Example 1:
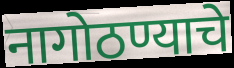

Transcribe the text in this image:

नागोठण्याचे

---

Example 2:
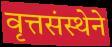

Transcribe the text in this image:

वृत्तसंस्थेने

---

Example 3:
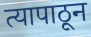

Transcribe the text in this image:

त्यापाठून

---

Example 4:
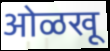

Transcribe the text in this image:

ओळखू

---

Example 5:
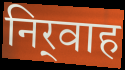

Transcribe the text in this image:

निर्वाह